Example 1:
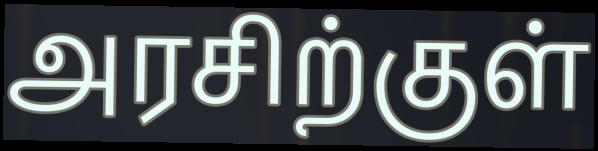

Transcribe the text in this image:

அரசிற்குள்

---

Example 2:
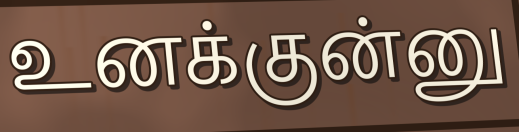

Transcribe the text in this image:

உனக்குன்னு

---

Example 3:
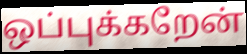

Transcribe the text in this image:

ஒப்புக்கறேன்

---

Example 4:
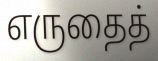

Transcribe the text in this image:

எருதைத்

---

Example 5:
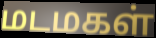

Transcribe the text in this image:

மடமகள்